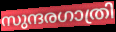
സുന്ദരഗാത്രി